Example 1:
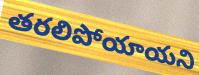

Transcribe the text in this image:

తరలిపోయాయని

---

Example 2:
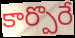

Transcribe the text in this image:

కార్పొరే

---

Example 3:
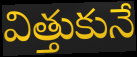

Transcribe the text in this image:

విత్తుకునే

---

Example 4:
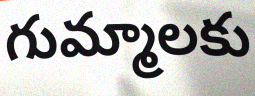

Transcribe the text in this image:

గుమ్మాలకు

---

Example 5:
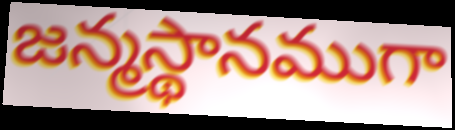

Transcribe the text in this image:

జన్మస్థానముగా